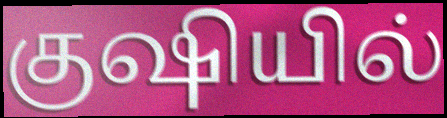
குஷியில்